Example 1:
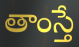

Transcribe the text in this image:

తాంస్తే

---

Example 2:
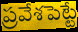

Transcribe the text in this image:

ప్రవేశపెట్టే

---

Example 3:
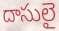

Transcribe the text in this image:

దాసులై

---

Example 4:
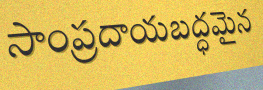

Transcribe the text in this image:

సాంప్రదాయబద్ధమైన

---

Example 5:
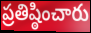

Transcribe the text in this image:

ప్రతిష్ఠించారు